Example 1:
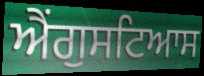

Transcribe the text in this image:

ਐਂਗੁਸਟਿਆਸ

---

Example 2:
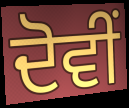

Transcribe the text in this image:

ਦੋਵੀਂ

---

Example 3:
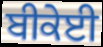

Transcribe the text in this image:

ਬੀਕੇਈ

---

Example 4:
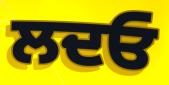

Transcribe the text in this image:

ਲਦਓ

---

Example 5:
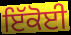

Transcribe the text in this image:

ਇੱਕੋਈ